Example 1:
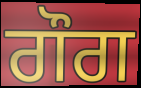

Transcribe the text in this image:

ਗੌਗ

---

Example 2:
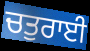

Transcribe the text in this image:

ਚਤੁਰਾਈ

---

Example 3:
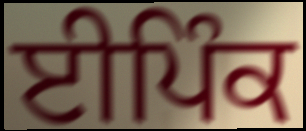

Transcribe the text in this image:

ਈਪਿੰਕ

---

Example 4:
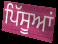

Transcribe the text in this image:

ਪਿੱਸੂਆਂ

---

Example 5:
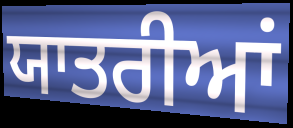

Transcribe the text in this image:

ਯਾਤਰੀਆਂ